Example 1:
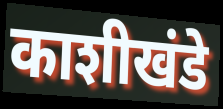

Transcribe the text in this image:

काशीखंडे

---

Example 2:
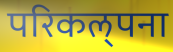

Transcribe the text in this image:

परिकल्पना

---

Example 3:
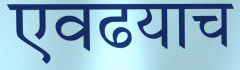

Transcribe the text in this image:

एवढयाच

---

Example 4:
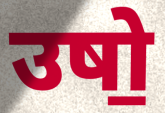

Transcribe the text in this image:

उषो॒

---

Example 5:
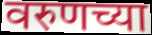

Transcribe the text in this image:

वरुणच्या